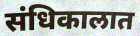
संधिकालात